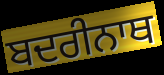
ਬਦਰੀਨਾਥ